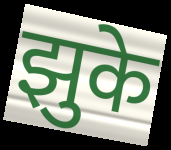
झुके